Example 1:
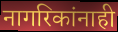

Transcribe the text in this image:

नागरिकांनाही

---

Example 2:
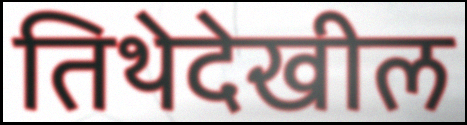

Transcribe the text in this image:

तिथेदेखील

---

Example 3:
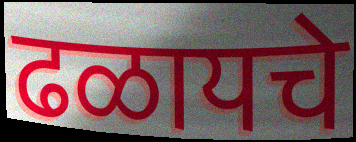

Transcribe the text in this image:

ढळायचे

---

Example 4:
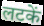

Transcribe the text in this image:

लटकें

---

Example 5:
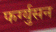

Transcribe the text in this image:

फर्ग्युसन